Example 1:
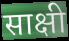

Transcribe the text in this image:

साक्षी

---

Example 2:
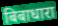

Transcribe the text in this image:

बिबाधारा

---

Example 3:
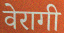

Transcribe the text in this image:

वेरागी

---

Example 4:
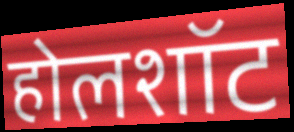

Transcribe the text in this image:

होलशॉट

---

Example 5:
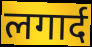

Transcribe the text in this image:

लगार्द